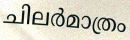
ചിലർമാത്രം